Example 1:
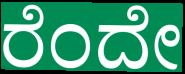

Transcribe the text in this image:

ರೆಂದೇ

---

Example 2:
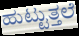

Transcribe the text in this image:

ಹುಟ್ಟುತ್ತಲೆ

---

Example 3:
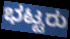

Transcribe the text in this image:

ಭಟ್ಟರು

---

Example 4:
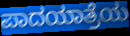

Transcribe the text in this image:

ಪಾದಯಾತ್ರೆಯ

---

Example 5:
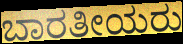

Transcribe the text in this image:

ಬಾರತೀಯರು